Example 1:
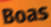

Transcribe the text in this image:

Boas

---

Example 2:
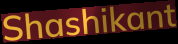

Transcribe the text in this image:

Shashikant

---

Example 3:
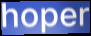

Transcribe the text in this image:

hoper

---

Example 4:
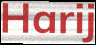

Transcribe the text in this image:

Harij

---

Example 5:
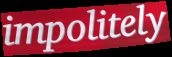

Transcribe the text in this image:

impolitely